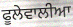
ਫੂਲੇਵਾਲੀਆ